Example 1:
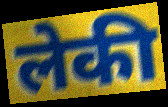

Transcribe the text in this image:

लेकी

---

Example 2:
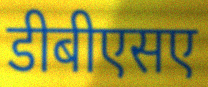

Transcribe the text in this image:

डीबीएसए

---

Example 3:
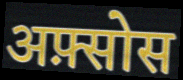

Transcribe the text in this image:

अफ़्सोस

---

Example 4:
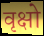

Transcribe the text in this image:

वृक्षो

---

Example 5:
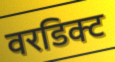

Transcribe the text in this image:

वरडिक्ट